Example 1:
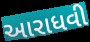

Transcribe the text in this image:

આરાધવી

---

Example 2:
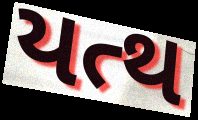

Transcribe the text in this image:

યત્થ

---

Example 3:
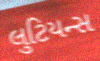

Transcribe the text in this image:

લુટિયન્સ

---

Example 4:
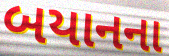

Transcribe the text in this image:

બયાનના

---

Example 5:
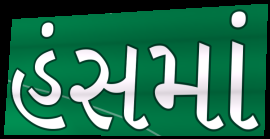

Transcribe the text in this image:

હંસમાં